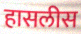
हासलीस